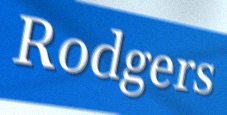
Rodgers